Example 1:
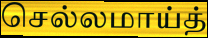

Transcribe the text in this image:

செல்லமாய்த்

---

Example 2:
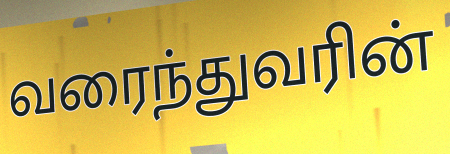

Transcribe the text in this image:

வரைந்துவரின்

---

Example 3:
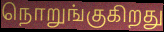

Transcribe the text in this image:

நொறுங்குகிறது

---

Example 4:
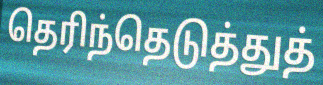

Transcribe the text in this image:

தெரிந்தெடுத்துத்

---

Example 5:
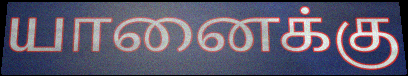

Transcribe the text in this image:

யானைக்கு